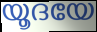
യൂദയേ